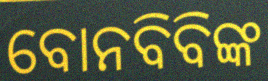
ବୋନବିବିଙ୍କ